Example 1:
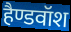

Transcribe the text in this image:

हैण्डवॉश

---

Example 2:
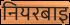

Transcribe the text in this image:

नियरबाइ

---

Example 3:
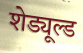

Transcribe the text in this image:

शेड्यूल्ड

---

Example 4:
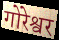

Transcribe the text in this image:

गोरेश्वर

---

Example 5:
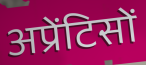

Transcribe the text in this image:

अप्रेंटिसों